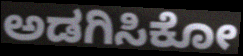
ಅಡಗಿಸಿಕೋ